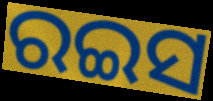
ରଇସ